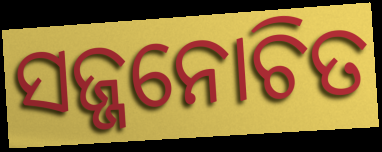
ସଜ୍ଜନୋଚିତ